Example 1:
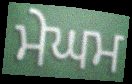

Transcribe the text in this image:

ਮੇਘਮ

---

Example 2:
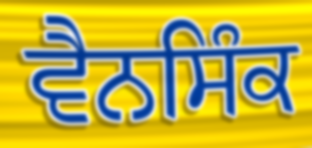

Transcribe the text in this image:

ਵੈਨਸਿੰਕ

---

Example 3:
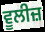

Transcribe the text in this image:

ਵੂਲੀਜ਼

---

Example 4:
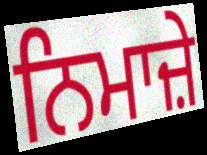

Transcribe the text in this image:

ਨਿਮਾਜ਼ੇ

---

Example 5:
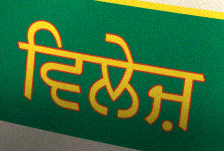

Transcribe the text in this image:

ਵਿਲੇਜ਼